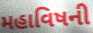
મહાવિષની